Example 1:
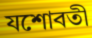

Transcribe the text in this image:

যশোবতী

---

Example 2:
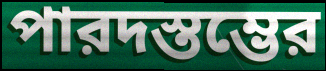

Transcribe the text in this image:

পারদস্তম্ভের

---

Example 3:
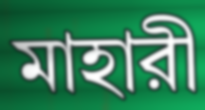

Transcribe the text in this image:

মাহারী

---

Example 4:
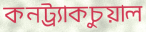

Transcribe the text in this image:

কনট্র্যাকচুয়াল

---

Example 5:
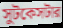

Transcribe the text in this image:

সুটকেসটার